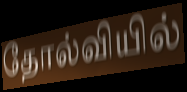
தோல்வியில்